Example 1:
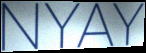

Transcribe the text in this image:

NYAY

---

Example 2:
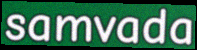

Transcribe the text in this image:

samvada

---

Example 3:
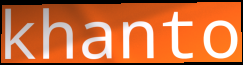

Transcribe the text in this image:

khanto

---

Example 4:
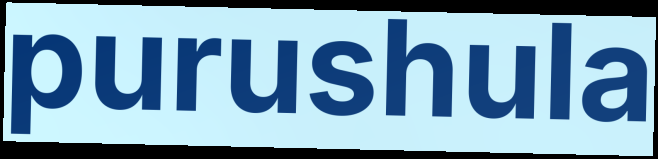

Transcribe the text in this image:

purushula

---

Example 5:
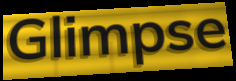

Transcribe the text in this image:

Glimpse